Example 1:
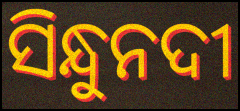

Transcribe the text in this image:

ସିନ୍ଧୁନଦୀ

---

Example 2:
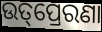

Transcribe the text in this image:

ଉତ୍‌ପ୍ରେରଣା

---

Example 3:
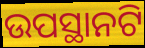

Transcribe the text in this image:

ଉପସ୍ଥାନଟି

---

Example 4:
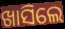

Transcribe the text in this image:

ଖାସିଲେ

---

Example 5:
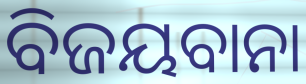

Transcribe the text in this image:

ବିଜୟବାନା